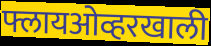
फ्लायओव्हरखाली